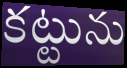
కట్టును